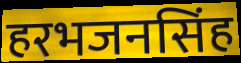
हरभजनसिंह